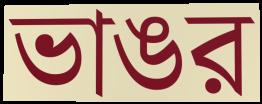
ভাঙর